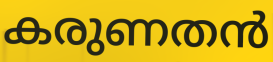
കരുണതൻ